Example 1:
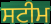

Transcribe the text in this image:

ਸਟੀਮ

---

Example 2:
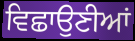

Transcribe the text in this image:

ਵਿਛਾਉਣੀਆਂ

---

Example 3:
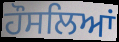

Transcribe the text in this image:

ਹੌਸਲਿਆਂ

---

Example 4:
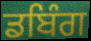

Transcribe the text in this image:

ਡਬਿੰਗ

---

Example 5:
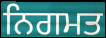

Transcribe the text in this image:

ਨਿਗਮਤ